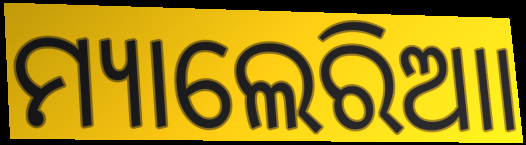
ମ୍ୟାଲେରିଆା